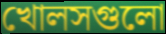
খোলসগুলো